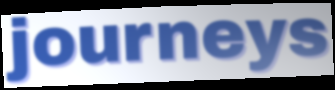
journeys